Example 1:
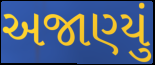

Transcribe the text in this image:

અજાણ્યું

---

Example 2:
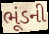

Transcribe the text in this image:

ભૂંડની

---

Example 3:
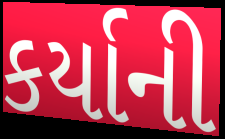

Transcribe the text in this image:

કર્યાની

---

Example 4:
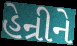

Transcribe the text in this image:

હેન્રીને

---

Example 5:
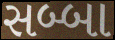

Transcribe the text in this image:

સબ્બા